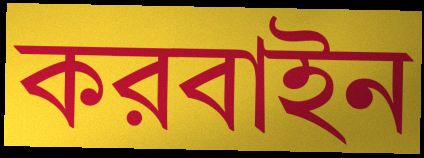
করবাইন